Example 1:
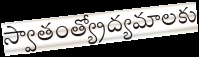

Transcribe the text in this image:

స్వాతంత్య్రోద్యమాలకు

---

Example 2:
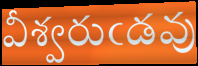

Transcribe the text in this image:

వీశ్వరుఁడవు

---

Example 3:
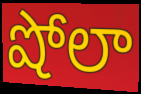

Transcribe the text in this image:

షోలా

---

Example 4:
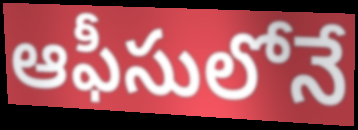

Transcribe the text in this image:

ఆఫీసులోనే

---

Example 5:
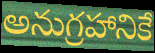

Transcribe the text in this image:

అనుగ్రహానికే